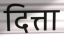
दित्ता